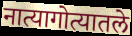
नात्यागोत्यातले